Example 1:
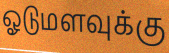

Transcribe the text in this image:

ஓடுமளவுக்கு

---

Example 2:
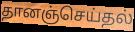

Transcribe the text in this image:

தானஞ்செய்தல்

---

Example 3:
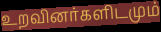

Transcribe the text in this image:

உறவினர்களிடமும்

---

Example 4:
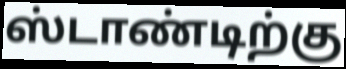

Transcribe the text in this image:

ஸ்டாண்டிற்கு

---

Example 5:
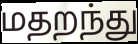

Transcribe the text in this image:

மதறந்து